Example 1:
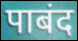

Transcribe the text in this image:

पाबंद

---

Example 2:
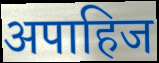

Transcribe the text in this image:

अपाहिज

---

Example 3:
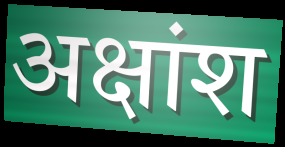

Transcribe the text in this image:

अक्षांश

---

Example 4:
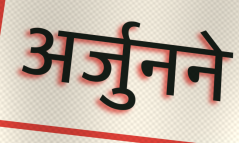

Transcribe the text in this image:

अर्जुनने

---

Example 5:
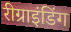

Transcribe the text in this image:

रीग्राइंडिंग